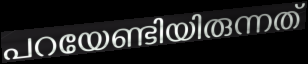
പറയേണ്ടിയിരുന്നത്